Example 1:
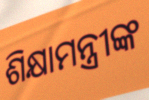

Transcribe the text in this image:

ଶିକ୍ଷାମନ୍ତ୍ରୀଙ୍କ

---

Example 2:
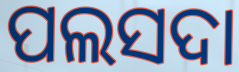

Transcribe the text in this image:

ପଲସଦା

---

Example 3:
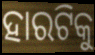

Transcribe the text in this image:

ହାରଟିକୁ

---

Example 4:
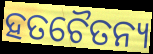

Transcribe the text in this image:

ହତଚୈତନ୍ୟ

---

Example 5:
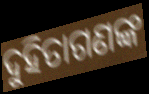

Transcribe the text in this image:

ଦୁହିତାଗଣଙ୍କ